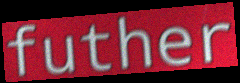
futher